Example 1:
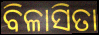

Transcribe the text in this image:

ବିଳାସିତା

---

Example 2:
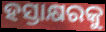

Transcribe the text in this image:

ହସ୍ତାକ୍ଷରକୁ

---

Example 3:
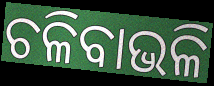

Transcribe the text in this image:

ଚଳିବାଭଳି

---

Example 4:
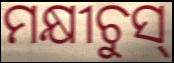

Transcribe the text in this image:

ମକ୍ଷୀଚୁସ୍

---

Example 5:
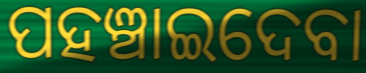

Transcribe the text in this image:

ପହଞ୍ଚାଇଦେବା